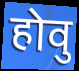
होवु